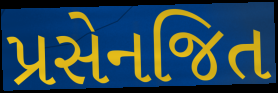
પ્રસેનજિત